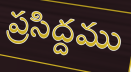
ప్రసిద్దము